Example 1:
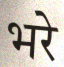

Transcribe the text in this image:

भरे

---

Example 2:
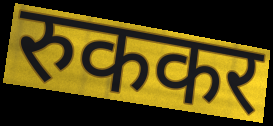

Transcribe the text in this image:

रुककर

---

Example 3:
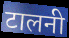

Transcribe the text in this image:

टालनी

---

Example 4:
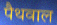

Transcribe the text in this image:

पैथवाल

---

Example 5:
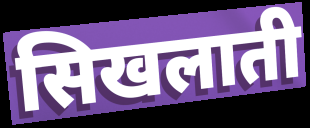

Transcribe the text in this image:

सिखलाती